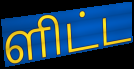
ளிட்ட